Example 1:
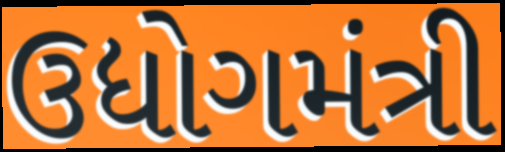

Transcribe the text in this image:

ઉદ્યોગમંત્રી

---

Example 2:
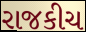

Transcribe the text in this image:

રાજકીચ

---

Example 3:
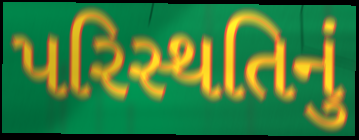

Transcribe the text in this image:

પરિસ્થતિનું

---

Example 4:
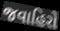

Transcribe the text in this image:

જવાહિરો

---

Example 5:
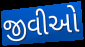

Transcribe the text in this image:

જીવીઓ